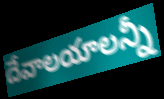
దేవాలయాలన్నీ